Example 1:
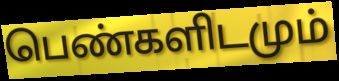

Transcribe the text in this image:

பெண்களிடமும்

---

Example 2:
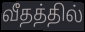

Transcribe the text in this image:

வீதத்தில்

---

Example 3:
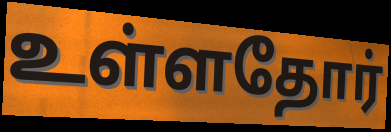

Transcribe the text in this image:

உள்ளதோர்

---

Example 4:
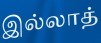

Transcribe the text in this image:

இல்லாத்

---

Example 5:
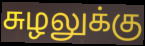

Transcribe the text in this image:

சுழலுக்கு